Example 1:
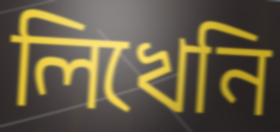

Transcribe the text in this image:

লিখেনি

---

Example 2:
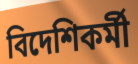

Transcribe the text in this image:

বিদেশিকর্মী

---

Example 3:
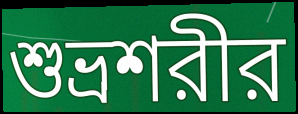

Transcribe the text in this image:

শুভ্রশরীর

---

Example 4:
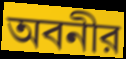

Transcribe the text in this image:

অবনীর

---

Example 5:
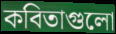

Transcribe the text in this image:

কবিতাগুলো